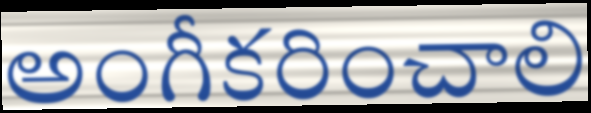
అంగీకరించాలి